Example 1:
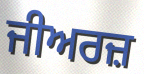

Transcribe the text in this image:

ਜੀਅਰਜ਼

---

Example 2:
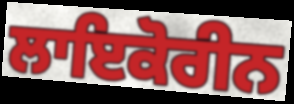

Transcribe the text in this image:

ਲਾਇਕੋਰੀਨ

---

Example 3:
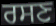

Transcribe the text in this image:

ਰਸਣ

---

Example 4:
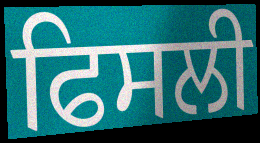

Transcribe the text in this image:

ਫਿਸਲੀ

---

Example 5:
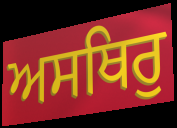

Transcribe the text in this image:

ਅਸਥਿਰੁ